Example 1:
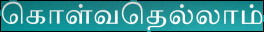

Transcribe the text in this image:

கொள்வதெல்லாம்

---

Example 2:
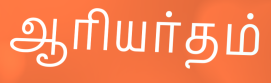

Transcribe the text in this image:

ஆரியர்தம்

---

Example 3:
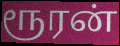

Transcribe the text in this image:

ரூரன்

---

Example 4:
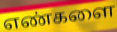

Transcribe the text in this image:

எண்களை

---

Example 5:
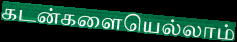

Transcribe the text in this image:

கடன்களையெல்லாம்